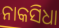
ନାକସିଧା